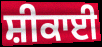
ਸ਼ੀਕਾਈ